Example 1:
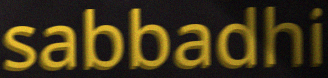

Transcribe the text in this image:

sabbadhi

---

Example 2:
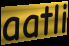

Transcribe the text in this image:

aatli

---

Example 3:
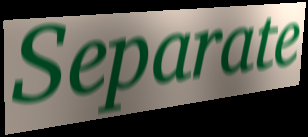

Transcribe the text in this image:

Separate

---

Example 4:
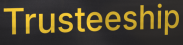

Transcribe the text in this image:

Trusteeship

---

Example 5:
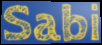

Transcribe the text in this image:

Sabi